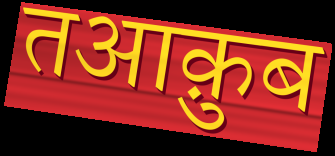
तआक़ुब